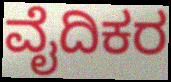
ವೈದಿಕರ